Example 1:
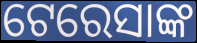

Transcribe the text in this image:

ଟେରେସାଙ୍କ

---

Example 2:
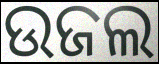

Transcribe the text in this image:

ଉଜଲ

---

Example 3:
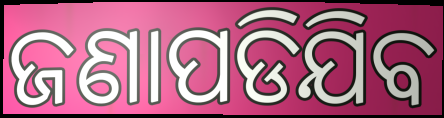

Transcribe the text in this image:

ଜଣାପଡିଯିବ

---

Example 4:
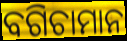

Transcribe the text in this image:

ବଗିଚାମାନ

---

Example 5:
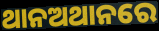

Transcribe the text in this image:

ଥାନଅଥାନରେ